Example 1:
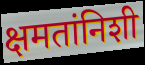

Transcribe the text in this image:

क्षमतांनिशी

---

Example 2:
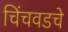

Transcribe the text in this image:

चिंचवडचे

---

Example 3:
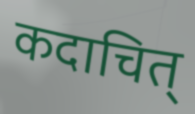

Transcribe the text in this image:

कदाचित्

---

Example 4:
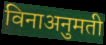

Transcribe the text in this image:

विनाअनुमती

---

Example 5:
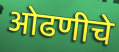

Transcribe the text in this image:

ओढणीचे